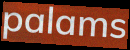
palams